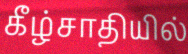
கீழ்சாதியில்